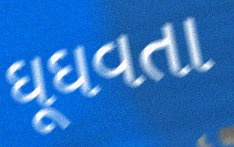
ઘૂઘવતા